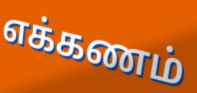
எக்கணம்